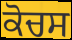
ਕੋਚਸ